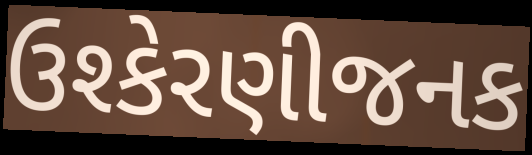
ઉશ્કેરણીજનક